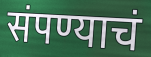
संपण्याचं